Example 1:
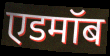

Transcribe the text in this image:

एडमॉब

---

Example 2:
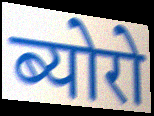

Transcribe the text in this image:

ब्योरो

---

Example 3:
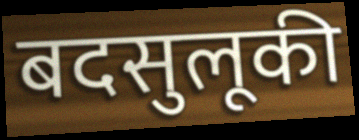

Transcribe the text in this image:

बदसुलूकी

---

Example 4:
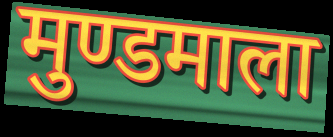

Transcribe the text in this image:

मुण्डमाला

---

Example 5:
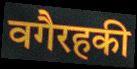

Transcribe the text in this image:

वगैरहकी